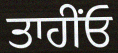
ਤਾਹੀਂਓ